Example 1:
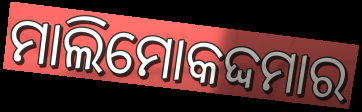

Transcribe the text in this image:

ମାଲିମୋକଦ୍ଦମାର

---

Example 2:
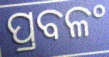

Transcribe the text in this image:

ପ୍ରବଳଂ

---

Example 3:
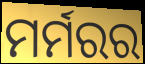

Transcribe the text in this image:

ମର୍ମରର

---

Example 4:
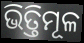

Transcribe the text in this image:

ଭିତ୍ତିମୂଳ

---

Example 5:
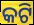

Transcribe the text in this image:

କଟି